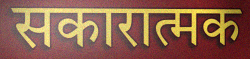
सकारात्मक